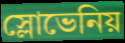
স্লোভেনিয়